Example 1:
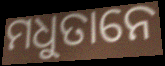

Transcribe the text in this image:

ମଧୁତାନେ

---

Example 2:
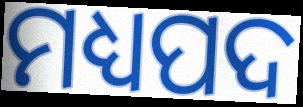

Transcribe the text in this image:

ମଧ୍ୟପଦ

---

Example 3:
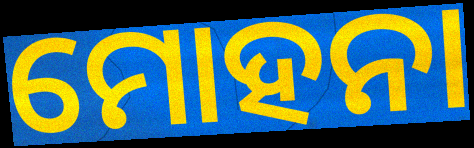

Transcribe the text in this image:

ମୋହନା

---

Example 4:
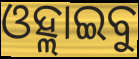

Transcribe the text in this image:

ଓହ୍ଲାଇବୁ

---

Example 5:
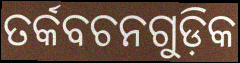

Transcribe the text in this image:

ତର୍କବଚନଗୁଡ଼ିକ